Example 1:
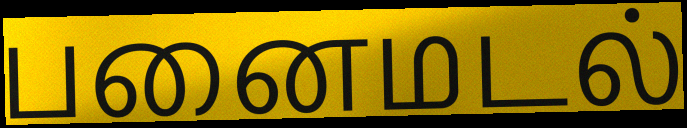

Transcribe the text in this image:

பனைமடல்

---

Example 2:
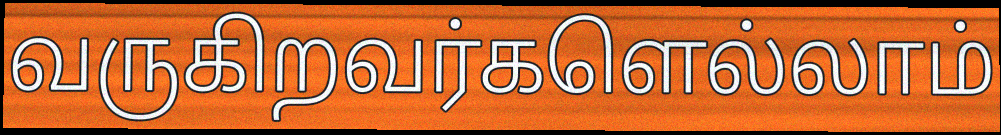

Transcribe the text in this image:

வருகிறவர்களெல்லாம்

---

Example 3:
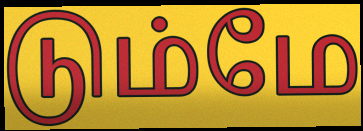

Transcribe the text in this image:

டும்மே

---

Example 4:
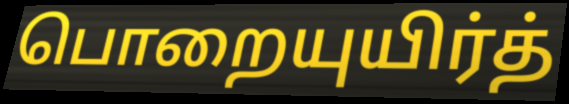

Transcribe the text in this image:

பொறையுயிர்த்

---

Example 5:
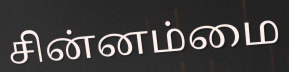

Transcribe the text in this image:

சின்னம்மை